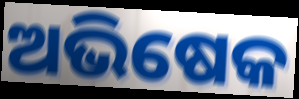
ଅଭିଷେକ